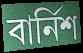
বার্নিশ